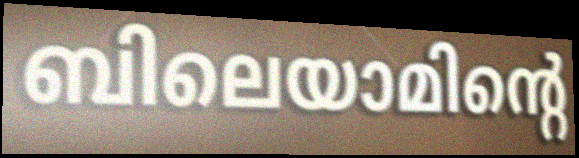
ബിലെയാമിന്റെ